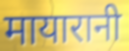
मायारानी